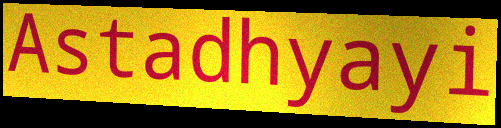
Astadhyayi